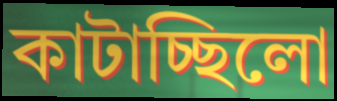
কাটাচ্ছিলো